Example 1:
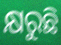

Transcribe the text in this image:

କ୍ଷରୁଛି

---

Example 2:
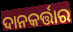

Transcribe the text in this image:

ଦାନକର୍ତ୍ତାର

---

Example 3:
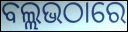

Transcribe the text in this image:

ବଲ୍ଲଭଠାରେ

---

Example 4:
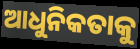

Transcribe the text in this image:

ଆଧୁନିକତାକୁ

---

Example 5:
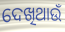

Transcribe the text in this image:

ଦେଖିଥାଉଁ